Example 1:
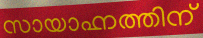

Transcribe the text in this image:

സായാഹ്നത്തിന്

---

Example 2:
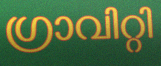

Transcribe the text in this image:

ഗ്രാവിറ്റി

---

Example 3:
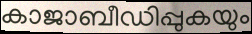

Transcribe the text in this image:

കാജാബീഡിപ്പുകയും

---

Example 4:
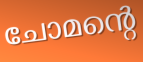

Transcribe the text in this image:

ചോമന്റെ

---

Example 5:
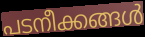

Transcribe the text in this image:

പടനീക്കങ്ങൾ